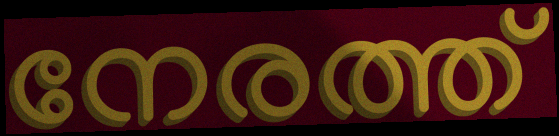
നേരത്ത്